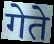
गेते